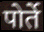
पोर्ते